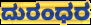
ದುರಂಧರ